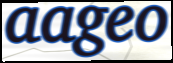
aageo